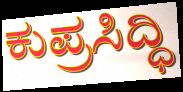
ಕುಪ್ರಸಿದ್ಧಿ